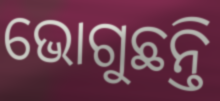
ଭୋଗୁଛନ୍ତି